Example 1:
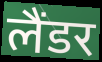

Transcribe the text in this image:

लैंडर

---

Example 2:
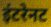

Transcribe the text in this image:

इंटरेनट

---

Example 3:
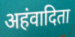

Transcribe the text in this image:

अहंवादिता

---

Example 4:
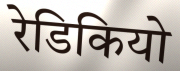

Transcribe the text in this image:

रेडिकियो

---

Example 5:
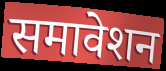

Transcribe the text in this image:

समावेशन